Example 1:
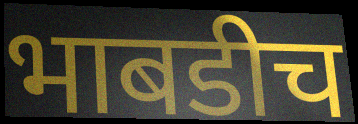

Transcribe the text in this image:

भाबडीच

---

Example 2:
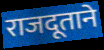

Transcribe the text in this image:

राजदूताने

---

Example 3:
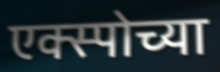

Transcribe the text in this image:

एक्स्पोच्या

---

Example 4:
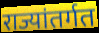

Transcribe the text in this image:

राज्यांतर्गत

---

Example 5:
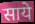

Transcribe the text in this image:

साये